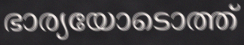
ഭാര്യയോടൊത്ത്